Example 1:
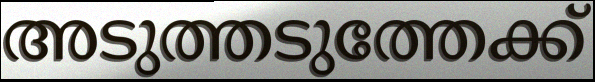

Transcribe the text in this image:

അടുത്തടുത്തേക്ക്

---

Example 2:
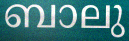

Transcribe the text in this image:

ബാലു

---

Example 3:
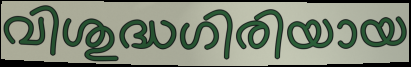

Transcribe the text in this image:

വിശുദ്ധഗിരിയായ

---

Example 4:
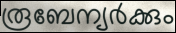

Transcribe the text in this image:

രൂബേന്യർക്കും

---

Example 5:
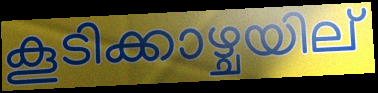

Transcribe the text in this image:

കൂടിക്കാഴ്ചയില്